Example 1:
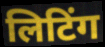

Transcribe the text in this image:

लिटिंग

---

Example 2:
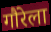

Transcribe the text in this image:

गौरेला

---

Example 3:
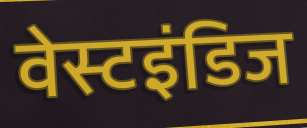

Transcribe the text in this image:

वेस्टइंडिज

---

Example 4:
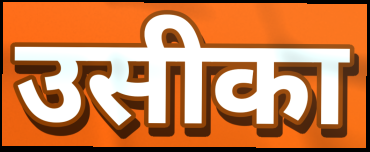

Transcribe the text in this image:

उसीका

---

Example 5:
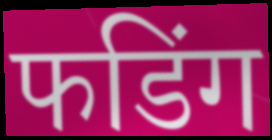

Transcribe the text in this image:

फडिंग